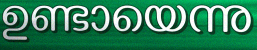
ഉണ്ടായെന്നു